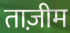
ताज़ीम